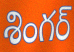
శింగర్